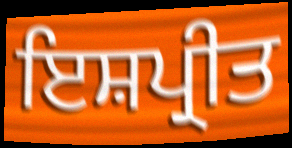
ਇਸ਼ਪ੍ਰੀਤ